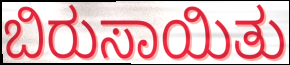
ಬಿರುಸಾಯಿತು